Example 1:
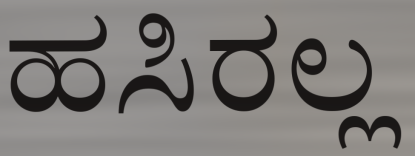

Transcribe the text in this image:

ಹಸಿರಲ್ಲ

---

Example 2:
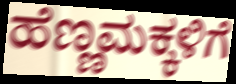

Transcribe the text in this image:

ಹೆಣ್ಣಮಕ್ಕಳಿಗೆ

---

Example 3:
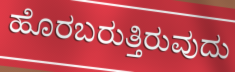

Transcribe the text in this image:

ಹೊರಬರುತ್ತಿರುವುದು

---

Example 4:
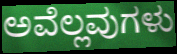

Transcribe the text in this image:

ಅವೆಲ್ಲವುಗಳು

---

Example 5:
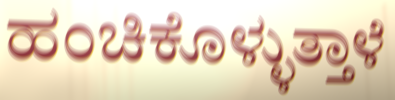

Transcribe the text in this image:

ಹಂಚಿಕೊಳ್ಳುತ್ತಾಳೆ